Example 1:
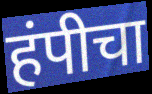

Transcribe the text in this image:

हंपीचा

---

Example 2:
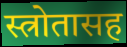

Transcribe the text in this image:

स्त्रोतासह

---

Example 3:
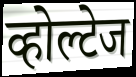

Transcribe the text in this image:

व्होल्टेज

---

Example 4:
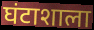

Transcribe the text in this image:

घंटाशाला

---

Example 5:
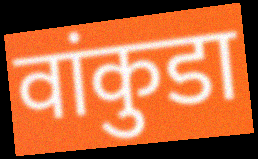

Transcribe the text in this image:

वांकुडा